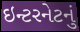
ઇન્ટરનેટનું